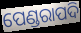
ପେଣ୍ଡରାପଦି